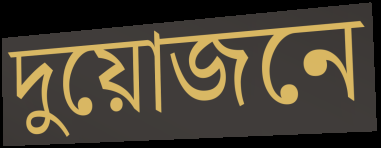
দুয়োজনে